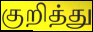
குறித்து